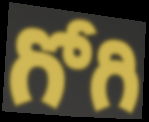
గోగి